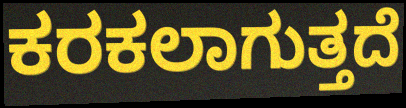
ಕರಕಲಾಗುತ್ತದೆ